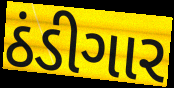
ઠંડીગાર